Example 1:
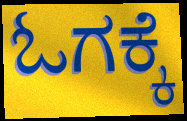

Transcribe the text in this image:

ಓಗಕ್ಕೆ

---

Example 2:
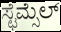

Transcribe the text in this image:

ಸ್ಟೆಮ್ಸೆಲ್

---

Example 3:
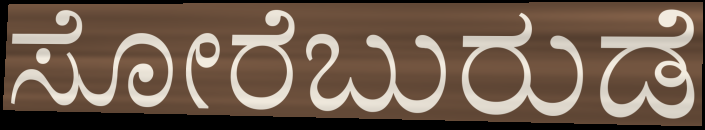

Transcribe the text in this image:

ಸೋರೆಬುರುಡೆ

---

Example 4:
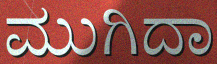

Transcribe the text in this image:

ಮುಗಿದಾ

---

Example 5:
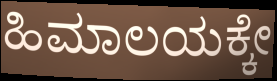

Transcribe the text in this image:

ಹಿಮಾಲಯಕ್ಕೇ